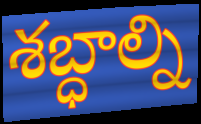
శబ్ధాల్ని